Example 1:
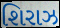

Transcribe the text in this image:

શિરાઝ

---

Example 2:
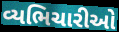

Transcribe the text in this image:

વ્યભિચારીઓ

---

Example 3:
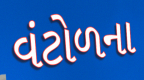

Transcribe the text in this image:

વંટોળના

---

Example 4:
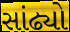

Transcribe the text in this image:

સાંઢ્યો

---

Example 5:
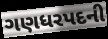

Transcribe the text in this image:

ગણધરપદની